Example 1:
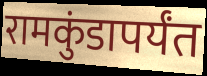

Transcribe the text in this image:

रामकुंडापर्यंत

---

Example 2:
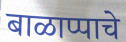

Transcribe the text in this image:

बाळाप्पाचे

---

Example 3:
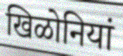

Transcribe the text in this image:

खिळोनियां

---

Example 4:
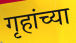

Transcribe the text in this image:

गृहांच्या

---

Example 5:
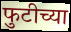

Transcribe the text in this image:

फुटीच्या